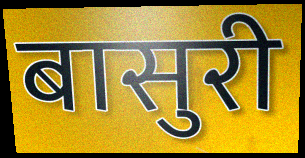
बासुरी